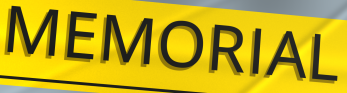
MEMORIAL